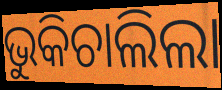
ଭୁକିଚାଲିଲା